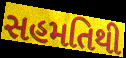
સહમતિથી